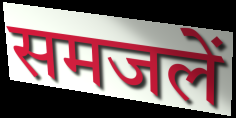
समजलें